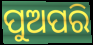
ପୁଅପରି